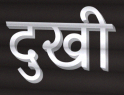
दुखी